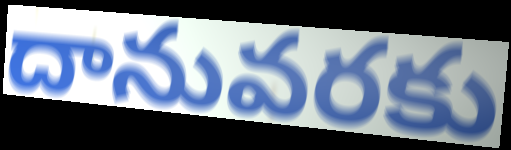
దానువరకు